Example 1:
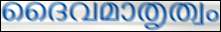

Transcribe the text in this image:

ദൈവമാതൃത്വം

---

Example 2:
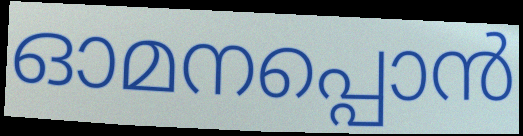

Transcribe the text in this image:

ഓമനപ്പൊൻ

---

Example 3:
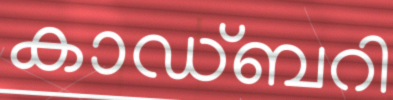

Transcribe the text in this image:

കാഡ്ബറി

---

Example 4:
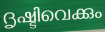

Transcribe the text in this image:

ദൃഷ്ടിവെക്കും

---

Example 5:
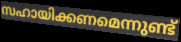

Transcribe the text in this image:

സഹായിക്കണമെന്നുണ്ട്